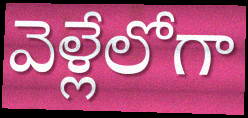
వెళ్లేలోగా